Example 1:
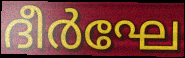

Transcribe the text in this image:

ദീർഘേ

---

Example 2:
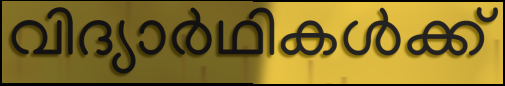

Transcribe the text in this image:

വിദ്യാർഥികൾക്ക്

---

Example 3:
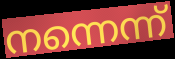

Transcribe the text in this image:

നന്നെന്ന്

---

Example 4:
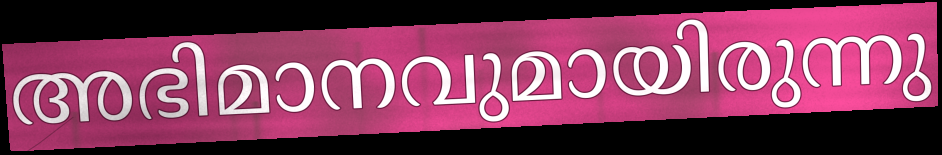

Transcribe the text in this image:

അഭിമാനവുമായിരുന്നു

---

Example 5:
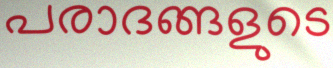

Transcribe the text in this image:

പരാദങ്ങളുടെ